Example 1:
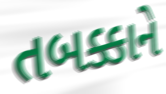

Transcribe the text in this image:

તબક્કાને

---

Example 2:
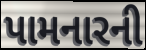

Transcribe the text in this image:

પામનારની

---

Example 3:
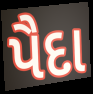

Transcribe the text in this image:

પૈદા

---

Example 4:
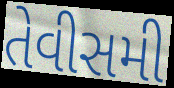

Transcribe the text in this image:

તેવીસમી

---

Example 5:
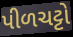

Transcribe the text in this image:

પીળચટ્ટો